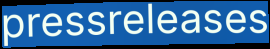
pressreleases